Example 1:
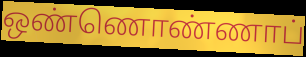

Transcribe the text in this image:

ஒண்ணொண்ணாப்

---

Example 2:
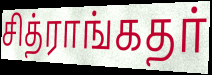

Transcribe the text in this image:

சித்ராங்கதர்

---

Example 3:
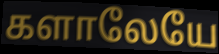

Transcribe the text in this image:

களாலேயே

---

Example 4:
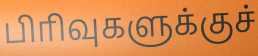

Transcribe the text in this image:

பிரிவுகளுக்குச்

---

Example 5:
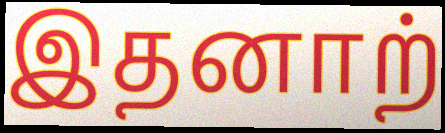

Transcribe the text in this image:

இதனாற்